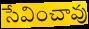
సేవించావు